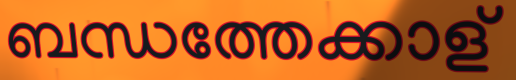
ബന്ധത്തേക്കാള്